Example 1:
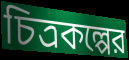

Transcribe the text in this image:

চিত্রকল্পের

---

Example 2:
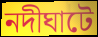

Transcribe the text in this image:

নদীঘাটে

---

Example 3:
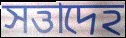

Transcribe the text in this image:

সত্তাদেহ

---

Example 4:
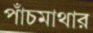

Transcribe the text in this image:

পাঁচমাথার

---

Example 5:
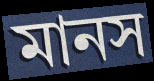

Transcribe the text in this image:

মানস